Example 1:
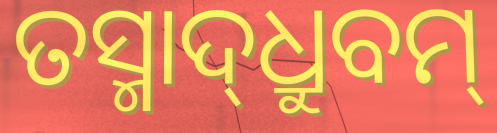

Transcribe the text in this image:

ତସ୍ମାଦ୍‌ଧ୍ରୁବମ୍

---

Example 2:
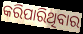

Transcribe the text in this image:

କରିପାରିଥିବାର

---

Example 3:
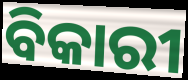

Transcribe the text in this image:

ବିକାରୀ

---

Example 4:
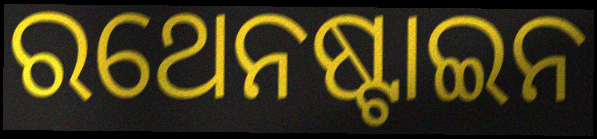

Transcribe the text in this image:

ରଥେନଷ୍ଟାଇନ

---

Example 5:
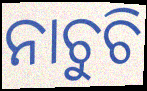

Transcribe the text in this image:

ନାଚୁଚି